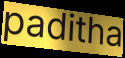
paditha